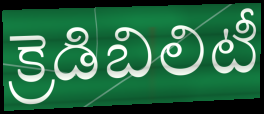
క్రెడిబిలిటీ